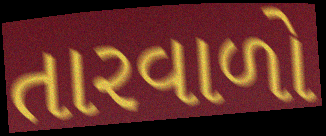
તારવાળો